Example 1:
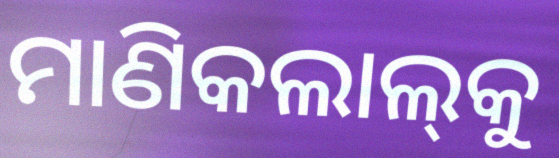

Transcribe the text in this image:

ମାଣିକଲାଲ୍‍କୁ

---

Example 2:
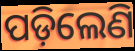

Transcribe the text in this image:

ପଡ଼ିଲେଣି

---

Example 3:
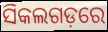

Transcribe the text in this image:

ସିକଲଗଡ଼ରେ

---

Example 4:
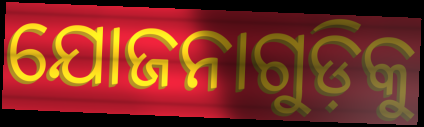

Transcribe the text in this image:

ଯୋଜନାଗୁଡ଼ିକୁ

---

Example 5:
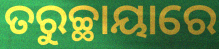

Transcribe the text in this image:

ତରୁଚ୍ଛାୟାରେ